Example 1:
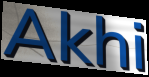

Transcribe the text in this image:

Akhi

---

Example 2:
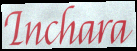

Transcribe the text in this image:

Inchara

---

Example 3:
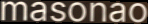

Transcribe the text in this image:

masonao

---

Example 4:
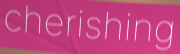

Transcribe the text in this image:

cherishing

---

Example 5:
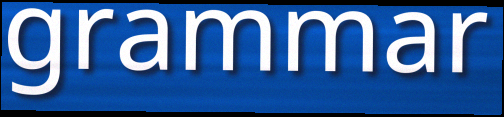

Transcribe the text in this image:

grammar